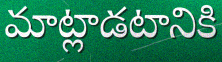
మాట్లాడటానికి